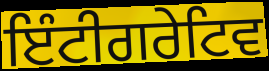
ਇੰਟੀਗਰੇਟਿਵ